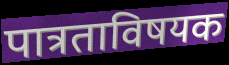
पात्रताविषयक